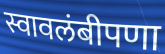
स्वावलंबीपणा